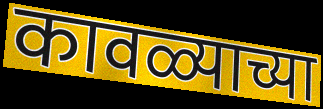
कावळ्याच्या